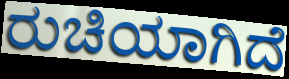
ರುಚಿಯಾಗಿದೆ